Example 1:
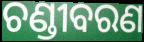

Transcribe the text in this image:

ଚଣ୍ଡୀବରଣ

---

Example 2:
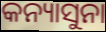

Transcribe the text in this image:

କନ୍ୟାସୁନା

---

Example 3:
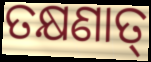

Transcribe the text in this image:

ତକ୍ଷଣାତ୍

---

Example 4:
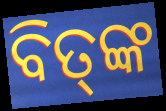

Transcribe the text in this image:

ବିତ୍‌ଙ୍କ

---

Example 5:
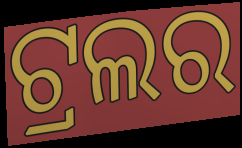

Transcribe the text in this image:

ଟ୍ରଲର